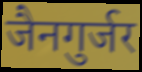
जैनगुर्जर